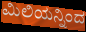
ಮಿಲಿಯನ್ನಿಂದ